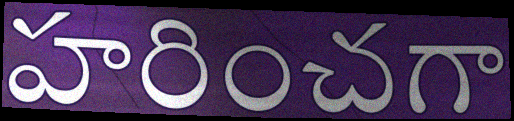
హరించగా